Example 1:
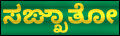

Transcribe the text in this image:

ಸಙ್ಖಾತೋ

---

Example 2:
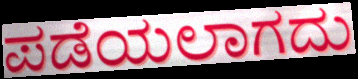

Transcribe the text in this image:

ಪಡೆಯಲಾಗದು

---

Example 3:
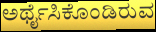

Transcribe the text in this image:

ಅರ್ಥೈಸಿಕೊಂಡಿರುವ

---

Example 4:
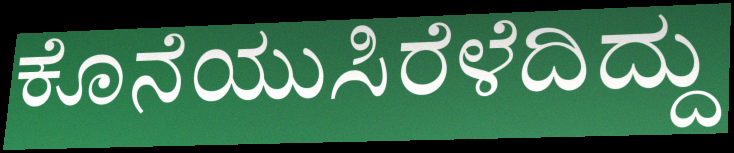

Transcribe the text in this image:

ಕೊನೆಯುಸಿರೆಳೆದಿದ್ದು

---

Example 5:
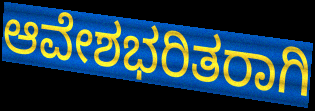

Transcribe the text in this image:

ಆವೇಶಭರಿತರಾಗಿ